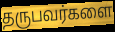
தருபவர்களை